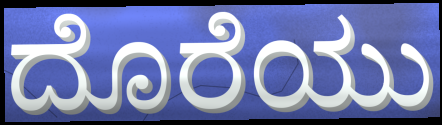
ದೊರೆಯು